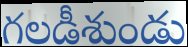
గలడీశుండు